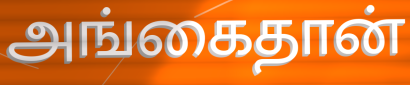
அங்கைதான்